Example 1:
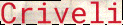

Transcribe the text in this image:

Criveli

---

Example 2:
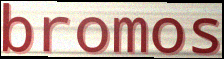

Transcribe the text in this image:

bromos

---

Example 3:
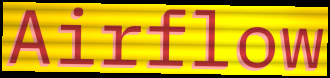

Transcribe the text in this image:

Airflow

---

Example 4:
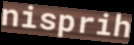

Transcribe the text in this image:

nisprih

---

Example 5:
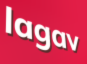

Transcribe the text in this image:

lagav